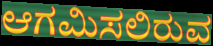
ಆಗಮಿಸಲಿರುವ